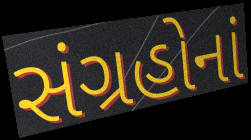
સંગ્રહોનાં